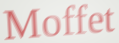
Moffet